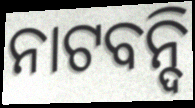
ନାଟବନ୍ଦି